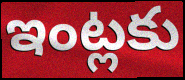
ఇంట్లకు